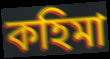
কহিমা